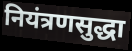
नियंत्रणसुद्धा